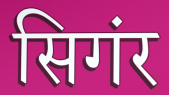
सिगंर